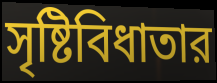
সৃষ্টিবিধাতার